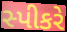
સ્પીકરે